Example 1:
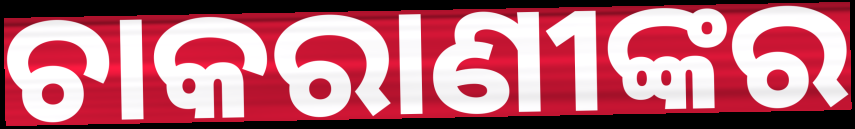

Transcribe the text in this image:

ଚାକରାଣୀଙ୍କର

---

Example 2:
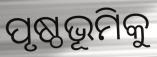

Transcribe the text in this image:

ପୃଷ୍ଠଭୂମିକୁ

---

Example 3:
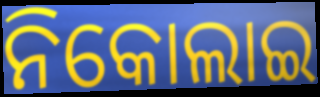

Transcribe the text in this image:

ନିକୋଲାଇ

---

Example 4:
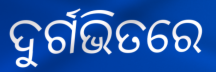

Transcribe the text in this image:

ଦୁର୍ଗଭିତରେ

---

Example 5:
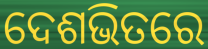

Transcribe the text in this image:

ଦେଶଭିତରେ